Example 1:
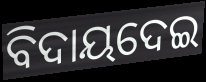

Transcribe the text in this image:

ବିଦାୟଦେଇ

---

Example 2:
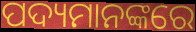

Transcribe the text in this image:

ପଦ୍ୟମାନଙ୍କରେ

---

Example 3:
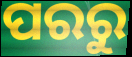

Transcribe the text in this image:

ପରରୁ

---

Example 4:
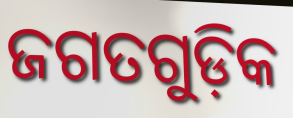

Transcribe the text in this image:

ଜଗତଗୁଡ଼ିକ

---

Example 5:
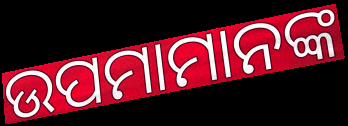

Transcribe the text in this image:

ଉପମାମାନଙ୍କ